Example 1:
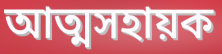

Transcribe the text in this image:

আত্মসহায়ক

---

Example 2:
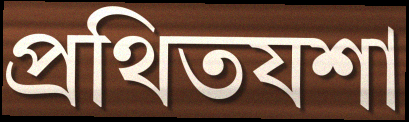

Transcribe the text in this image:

প্ৰথিতযশা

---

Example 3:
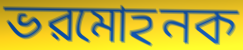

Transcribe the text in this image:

ভৱমোহনক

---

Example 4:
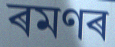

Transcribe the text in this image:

ৰমণৰ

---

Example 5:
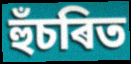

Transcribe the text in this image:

হুঁচৰিত